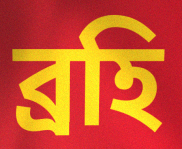
ব্রহি